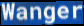
Wanger